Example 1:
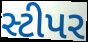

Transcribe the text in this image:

સ્ટીપર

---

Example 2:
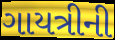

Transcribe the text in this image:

ગાયત્રીની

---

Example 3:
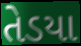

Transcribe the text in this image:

તેડયા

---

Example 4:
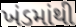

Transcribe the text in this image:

ખંડમાંથી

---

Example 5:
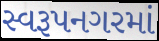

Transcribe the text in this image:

સ્વરૂપનગરમાં